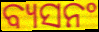
ବ୍ୟସନଂ